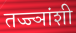
तज्ज्ञांशी